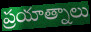
ప్రయాత్నాలు